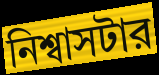
নিশ্বাসটার